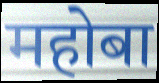
महोबा